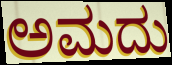
ಅಮದು